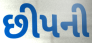
છીપની